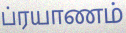
ப்ரயாணம்